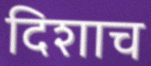
दिशाच